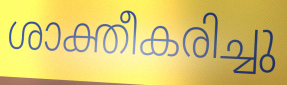
ശാക്തീകരിച്ചു